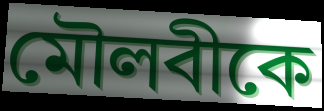
মৌলবীকে